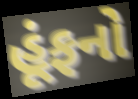
હૂંફનો